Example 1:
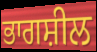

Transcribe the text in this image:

ਭਾਗਸ਼ੀਲ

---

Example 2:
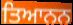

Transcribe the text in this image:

ਤਿਆਨਨ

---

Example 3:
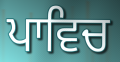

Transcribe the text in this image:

ਪਾਵਿਚ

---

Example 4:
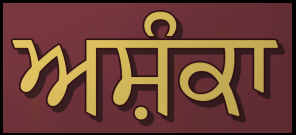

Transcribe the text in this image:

ਅਸ਼ੰਕਾ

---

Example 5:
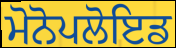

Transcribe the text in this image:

ਮੋਨੋਪਲੋਇਡ